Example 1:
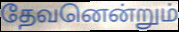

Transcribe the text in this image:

தேவனென்றும்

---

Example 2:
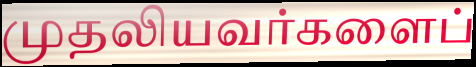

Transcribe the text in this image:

முதலியவர்களைப்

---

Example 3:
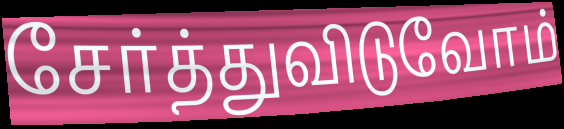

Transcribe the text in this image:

சேர்த்துவிடுவோம்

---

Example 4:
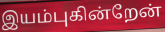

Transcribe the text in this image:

இயம்புகின்றேன்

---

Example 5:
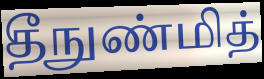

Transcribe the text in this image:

தீநுண்மித்